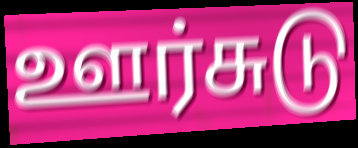
ஊர்சுடு